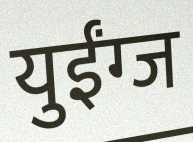
युईंग्ज